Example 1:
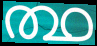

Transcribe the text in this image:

ത്ഥ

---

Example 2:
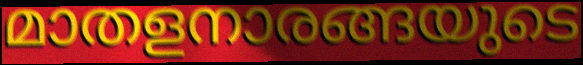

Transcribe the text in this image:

മാതളനാരങ്ങയുടെ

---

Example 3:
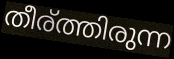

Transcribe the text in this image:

തീര്ത്തിരുന്ന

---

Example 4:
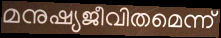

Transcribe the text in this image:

മനുഷ്യജീവിതമെന്ന്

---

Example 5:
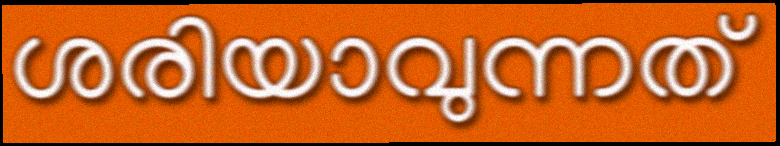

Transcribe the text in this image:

ശരിയാവുന്നത്